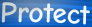
Protect